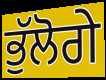
ਭੁੱਲੋਗੇ